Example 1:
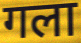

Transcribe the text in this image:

गला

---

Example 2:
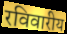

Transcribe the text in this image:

रविवारीय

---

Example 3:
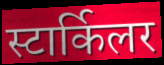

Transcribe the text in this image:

स्टार्किलर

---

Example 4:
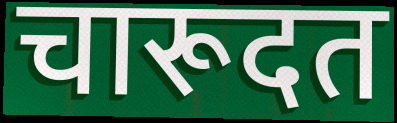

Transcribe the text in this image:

चारूदत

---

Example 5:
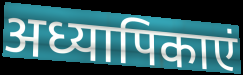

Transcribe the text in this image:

अध्यापिकाएं